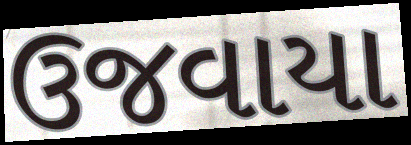
ઉજવાયા